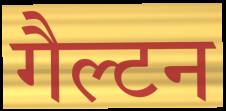
गैल्टन